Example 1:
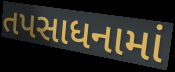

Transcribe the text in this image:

તપસાધનામાં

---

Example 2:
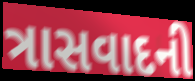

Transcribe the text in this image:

ત્રાસવાદની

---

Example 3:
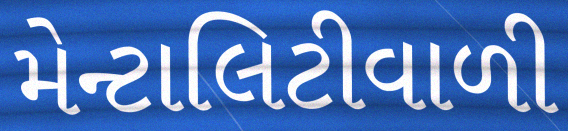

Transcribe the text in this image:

મેન્ટાલિટીવાળી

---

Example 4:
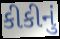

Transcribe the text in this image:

કીકીનું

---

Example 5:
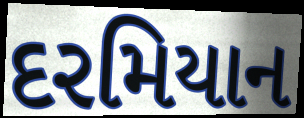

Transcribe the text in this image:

દરમિયાન